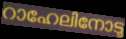
റാഹേലിനോടു